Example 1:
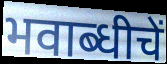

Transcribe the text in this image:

भवाब्धीचें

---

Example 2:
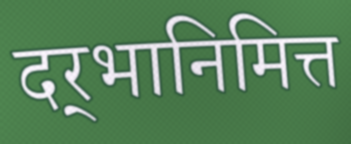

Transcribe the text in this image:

दर्भानिमित्त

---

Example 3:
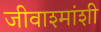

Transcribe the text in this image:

जीवाश्मांशी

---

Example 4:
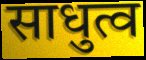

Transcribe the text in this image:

साधुत्व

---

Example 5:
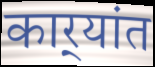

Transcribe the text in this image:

कार्यांत